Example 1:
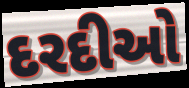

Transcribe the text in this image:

દરદીઓ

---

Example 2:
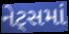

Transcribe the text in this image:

નેટ્સમાં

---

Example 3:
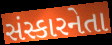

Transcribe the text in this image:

સંસ્કારનેતા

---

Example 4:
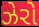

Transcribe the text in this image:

ઝેરો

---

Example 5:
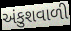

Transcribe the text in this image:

અંકુશવાળી